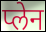
प्लेन